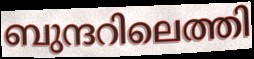
ബുന്ദറിലെത്തി